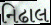
નિઢાલ